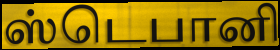
ஸ்டெபானி